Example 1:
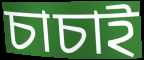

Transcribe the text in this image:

চাচাই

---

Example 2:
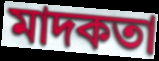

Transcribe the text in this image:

মাদকতা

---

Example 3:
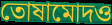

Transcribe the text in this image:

তোষামোদও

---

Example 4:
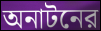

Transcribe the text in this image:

অনাটনের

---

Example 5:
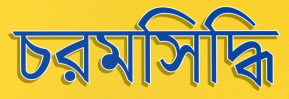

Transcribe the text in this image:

চরমসিদ্ধি